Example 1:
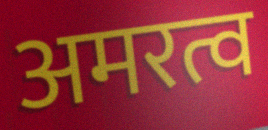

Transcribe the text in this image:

अमरत्व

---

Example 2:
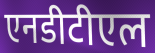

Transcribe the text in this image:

एनडीटीएल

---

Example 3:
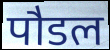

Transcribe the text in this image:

पौडल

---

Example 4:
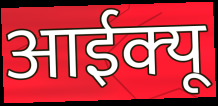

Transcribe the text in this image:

आईक्यू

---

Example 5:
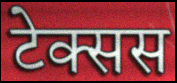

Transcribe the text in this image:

टेक्सस